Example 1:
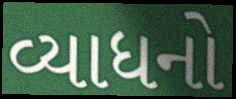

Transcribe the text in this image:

વ્યાધનો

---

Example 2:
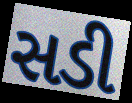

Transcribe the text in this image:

સડી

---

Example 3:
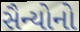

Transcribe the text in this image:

સૈન્યોનો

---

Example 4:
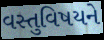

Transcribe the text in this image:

વસ્તુવિષયને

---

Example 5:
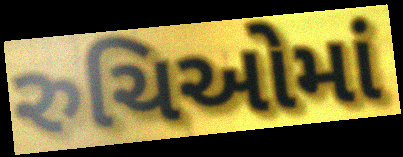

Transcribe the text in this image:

રુચિઓમાં